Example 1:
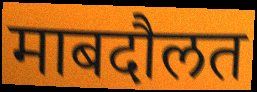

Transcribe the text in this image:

माबदौलत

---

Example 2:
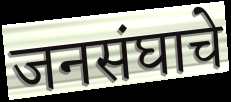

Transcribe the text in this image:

जनसंघाचे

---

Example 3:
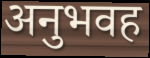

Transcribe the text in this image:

अनुभवह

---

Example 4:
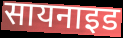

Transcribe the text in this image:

सायनाइड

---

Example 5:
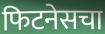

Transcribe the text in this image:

फिटनेसचा